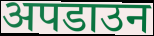
अपडाउन